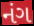
નંગ